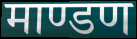
माण्डण